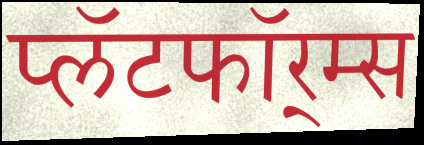
प्लॅटफॉर्म्स